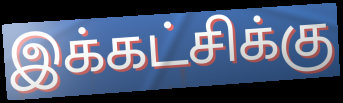
இக்கட்சிக்கு